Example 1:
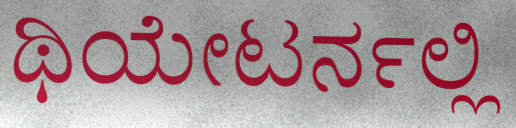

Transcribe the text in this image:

ಥಿಯೇಟರ್ನಲ್ಲಿ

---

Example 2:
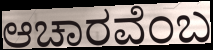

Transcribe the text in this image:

ಆಚಾರವೆಂಬ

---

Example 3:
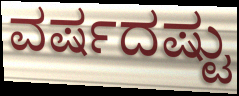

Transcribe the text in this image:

ವರ್ಷದಷ್ಟು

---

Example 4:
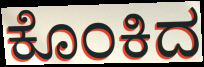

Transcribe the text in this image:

ಕೊಂಕಿದ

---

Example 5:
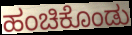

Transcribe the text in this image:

ಹಂಚಿಕೊಂಡು